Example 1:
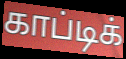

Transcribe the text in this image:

காப்டிக்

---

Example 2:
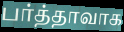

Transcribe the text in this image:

பர்த்தாவாக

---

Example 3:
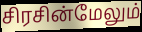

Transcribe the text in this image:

சிரசின்மேலும்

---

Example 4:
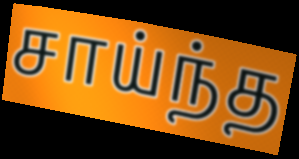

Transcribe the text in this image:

சாய்ந்த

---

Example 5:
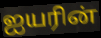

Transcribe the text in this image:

ஐயரின்